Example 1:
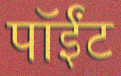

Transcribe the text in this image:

पॉईंट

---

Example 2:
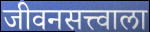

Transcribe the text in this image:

जीवनसत्त्वाला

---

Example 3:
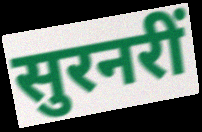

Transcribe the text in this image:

सुरनरीं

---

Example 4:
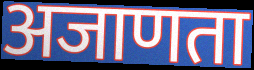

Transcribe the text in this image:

अजाणता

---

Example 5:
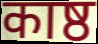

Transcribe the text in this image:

काष्ठ